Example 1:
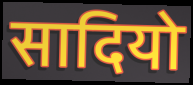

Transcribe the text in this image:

सादियो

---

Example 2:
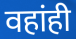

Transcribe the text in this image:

वहांही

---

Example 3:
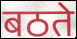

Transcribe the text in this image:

बठते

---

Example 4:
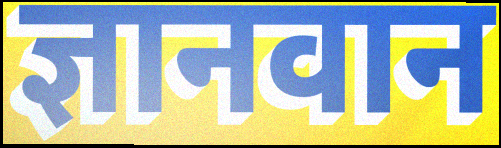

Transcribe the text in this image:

ज्ञानवान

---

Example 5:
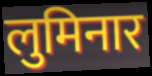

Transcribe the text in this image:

लुमिनार